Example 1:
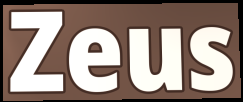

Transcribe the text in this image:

Zeus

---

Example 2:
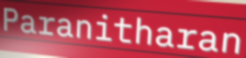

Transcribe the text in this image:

Paranitharan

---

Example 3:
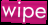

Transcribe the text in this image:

wipe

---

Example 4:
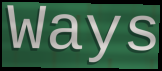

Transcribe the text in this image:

Ways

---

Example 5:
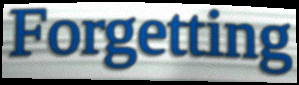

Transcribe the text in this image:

Forgetting